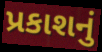
પ્રકાશનું